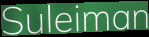
Suleiman